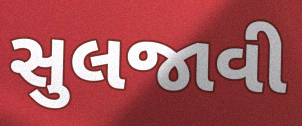
સુલજાવી